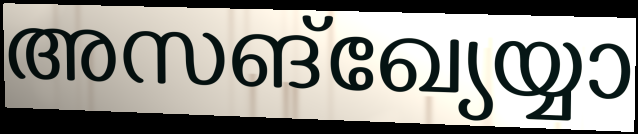
അസങ്ഖ്യേയ്യാ